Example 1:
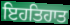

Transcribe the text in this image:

ਇਹਤਿਹਾਤ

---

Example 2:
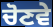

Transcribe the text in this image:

ਚੋਣਵੇ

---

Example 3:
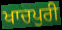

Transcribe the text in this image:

ਖਾਚਪੁਰੀ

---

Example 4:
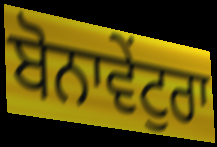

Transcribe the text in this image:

ਬੋਨਾਵੇਂਟੁਰਾ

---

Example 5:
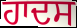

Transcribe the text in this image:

ਹਾਦਸ